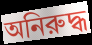
অনিরুদ্ধ